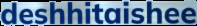
deshhitaishee